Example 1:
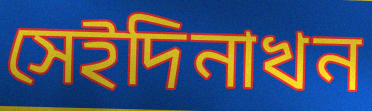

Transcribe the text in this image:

সেইদিনাখন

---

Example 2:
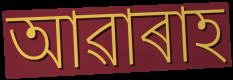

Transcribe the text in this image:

আৱাৰাহ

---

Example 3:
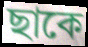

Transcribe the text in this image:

ছাকে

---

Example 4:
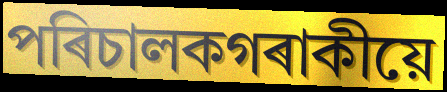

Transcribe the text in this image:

পৰিচালকগৰাকীয়ে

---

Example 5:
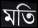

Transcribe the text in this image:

মতি